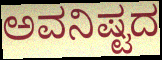
ಅವನಿಷ್ಟದ